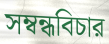
সম্বন্ধবিচার